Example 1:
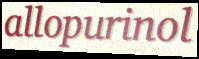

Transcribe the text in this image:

allopurinol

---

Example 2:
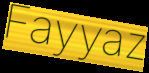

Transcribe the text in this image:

Fayyaz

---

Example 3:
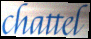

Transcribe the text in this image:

chattel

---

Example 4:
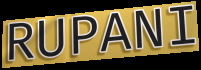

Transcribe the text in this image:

RUPANI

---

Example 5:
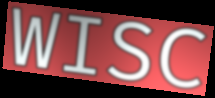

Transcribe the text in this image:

WISC